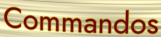
Commandos